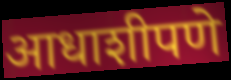
आधाशीपणे